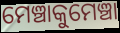
ମେଞ୍ଚାକୁମେଞ୍ଚା